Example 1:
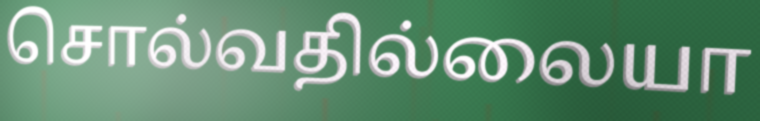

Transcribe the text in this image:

சொல்வதில்லையா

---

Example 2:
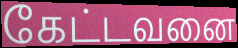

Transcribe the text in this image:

கேட்டவனை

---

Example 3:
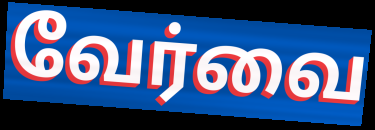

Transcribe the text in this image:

வேர்வை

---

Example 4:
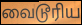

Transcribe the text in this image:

வைடூரிய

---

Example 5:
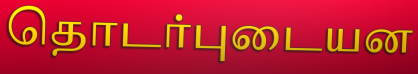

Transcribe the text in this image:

தொடர்புடையன